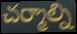
చర్మాల్ని